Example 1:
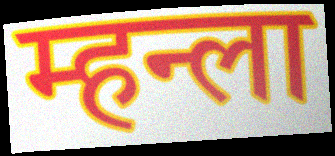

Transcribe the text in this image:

म्हन्ला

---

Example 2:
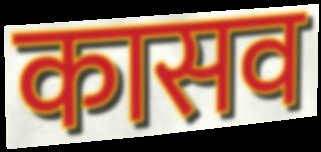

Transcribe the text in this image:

कासव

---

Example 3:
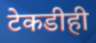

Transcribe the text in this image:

टेकडीही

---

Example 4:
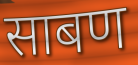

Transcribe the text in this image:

साबण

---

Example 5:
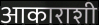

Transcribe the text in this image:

आकाराशी